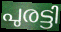
പുരട്ടി